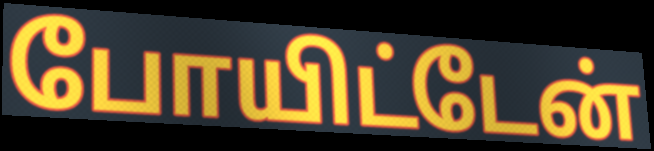
போயிட்டேன்